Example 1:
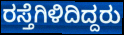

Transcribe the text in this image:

ರಸ್ತೆಗಿಳಿದಿದ್ದರು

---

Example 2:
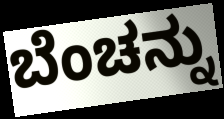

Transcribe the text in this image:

ಬೆಂಚನ್ನು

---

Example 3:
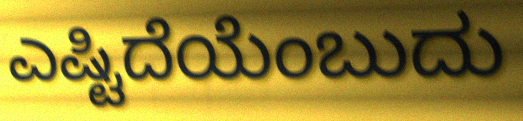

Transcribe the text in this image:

ಎಷ್ಟಿದೆಯೆಂಬುದು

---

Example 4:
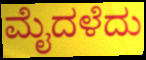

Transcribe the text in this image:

ಮೈದಳೆದು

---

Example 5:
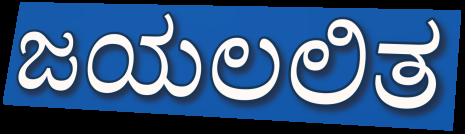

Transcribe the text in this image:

ಜಯಲಲಿತ